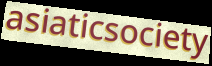
asiaticsociety